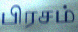
பிரசம்